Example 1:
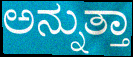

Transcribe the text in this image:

ಅನ್ನುತ್ತಾ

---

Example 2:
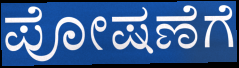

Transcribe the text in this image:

ಪೋಷಣೆಗೆ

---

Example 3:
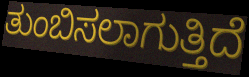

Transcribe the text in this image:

ತುಂಬಿಸಲಾಗುತ್ತಿದೆ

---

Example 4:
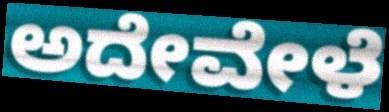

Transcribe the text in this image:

ಅದೇವೇಳೆ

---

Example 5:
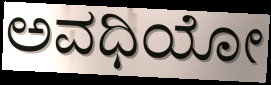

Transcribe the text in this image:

ಅವಧಿಯೋ